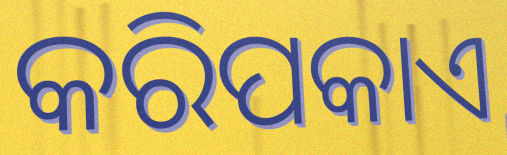
କରିପକାଏ